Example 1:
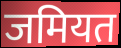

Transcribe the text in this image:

जमियत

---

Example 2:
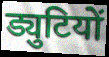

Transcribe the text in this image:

ड्युटियों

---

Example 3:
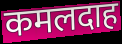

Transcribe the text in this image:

कमलदाह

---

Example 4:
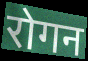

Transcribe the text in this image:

रोगन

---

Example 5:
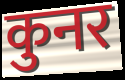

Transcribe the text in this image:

कुनर